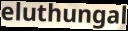
eluthungal